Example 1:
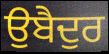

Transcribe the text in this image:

ਉਬੈਦੁਰ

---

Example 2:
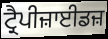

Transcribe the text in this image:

ਟ੍ਰੈਪੀਜ਼ਾਈਡਜ਼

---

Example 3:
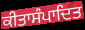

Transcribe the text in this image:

ਕੀਤਾਸੰਪਾਦਿਤ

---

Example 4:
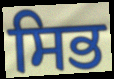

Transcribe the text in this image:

ਸਿਭ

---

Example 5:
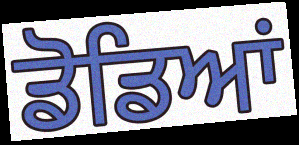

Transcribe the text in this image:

ਡੋਡਿਆਂ